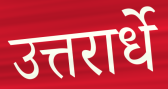
उत्तरार्धे